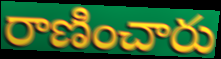
రాణించారు